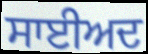
ਸਾਈਅਦ